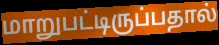
மாறுபட்டிருப்பதால்